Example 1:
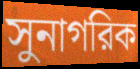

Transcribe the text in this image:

সুনাগরিক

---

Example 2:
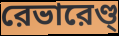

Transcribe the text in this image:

রেভারেণ্ড্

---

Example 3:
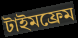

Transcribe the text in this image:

টাইমফ্রেম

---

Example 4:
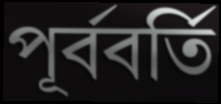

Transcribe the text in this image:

পূর্ববর্তি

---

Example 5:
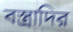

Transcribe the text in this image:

বস্ত্রাদির